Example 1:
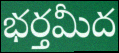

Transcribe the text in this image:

భర్తమీద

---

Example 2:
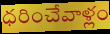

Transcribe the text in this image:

ధరించేవాళ్లం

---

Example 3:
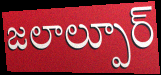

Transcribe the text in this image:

జలాల్పూర్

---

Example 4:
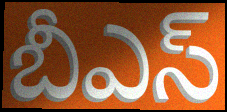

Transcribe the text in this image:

బీఎస్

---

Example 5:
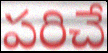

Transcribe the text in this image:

పరిచే